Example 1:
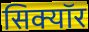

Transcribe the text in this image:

सिक्यॉर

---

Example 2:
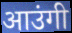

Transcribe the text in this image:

आउंगी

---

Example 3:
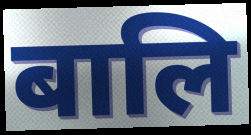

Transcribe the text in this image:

बालि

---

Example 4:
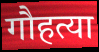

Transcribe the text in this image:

गौहत्या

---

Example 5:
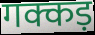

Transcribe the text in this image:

गक्कड़